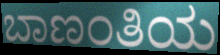
ಬಾಣಂತಿಯ